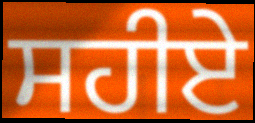
ਸਹੀਏ